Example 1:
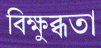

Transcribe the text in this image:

বিক্ষুব্ধতা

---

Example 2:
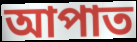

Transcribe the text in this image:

আপাত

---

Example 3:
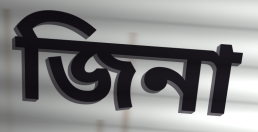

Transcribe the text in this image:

জিনা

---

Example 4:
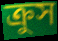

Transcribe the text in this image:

ক্রুস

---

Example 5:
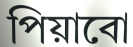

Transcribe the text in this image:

পিয়াবো